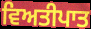
ਵਿਅਤੀਪਾਤ